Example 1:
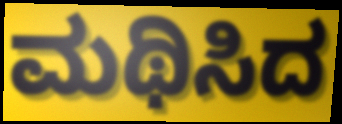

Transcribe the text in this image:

ಮಥಿಸಿದ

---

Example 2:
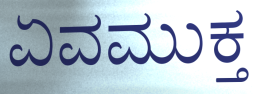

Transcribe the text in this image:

ಏವಮುಕ್ತ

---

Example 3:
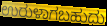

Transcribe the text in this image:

ಉರುಳಾಗಬಹುದು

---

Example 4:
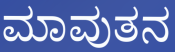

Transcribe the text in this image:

ಮಾವುತನ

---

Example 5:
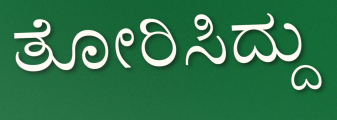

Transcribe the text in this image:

ತೋರಿಸಿದ್ದು